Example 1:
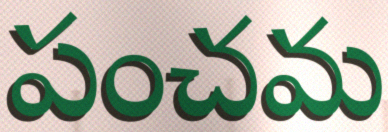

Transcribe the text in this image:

పంచమ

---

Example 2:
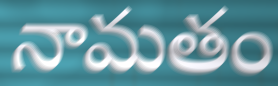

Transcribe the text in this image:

నామతం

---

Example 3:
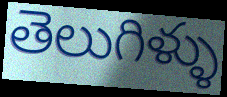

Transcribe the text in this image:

తెలుగిళ్ళు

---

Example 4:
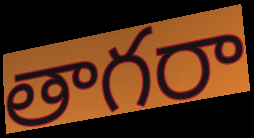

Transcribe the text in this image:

తాగరా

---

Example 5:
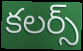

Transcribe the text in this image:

కలర్స్